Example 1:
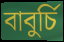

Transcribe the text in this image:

বাবুর্চি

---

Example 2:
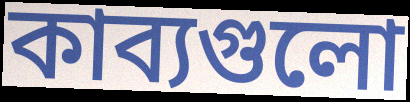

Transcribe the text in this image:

কাব্যগুলো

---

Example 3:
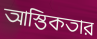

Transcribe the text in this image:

আস্তিকতার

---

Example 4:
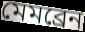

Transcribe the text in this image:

মেমব্রেন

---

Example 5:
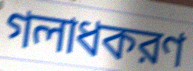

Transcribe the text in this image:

গলাধকরণ